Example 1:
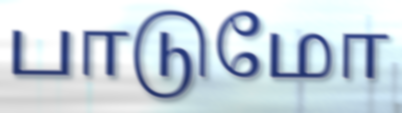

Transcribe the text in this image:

பாடுமோ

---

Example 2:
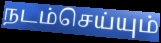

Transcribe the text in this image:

நடம்செய்யும்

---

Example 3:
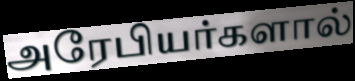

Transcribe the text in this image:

அரேபியர்களால்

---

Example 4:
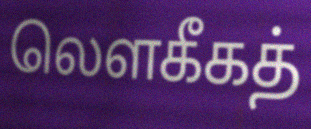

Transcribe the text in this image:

லௌகீகத்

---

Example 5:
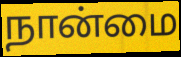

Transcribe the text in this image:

நான்மை